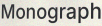
Monograph